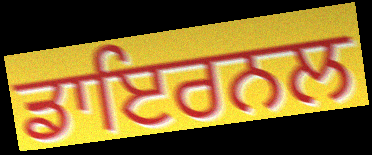
ਡਾਇਰਨਲ